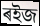
ৰইজ